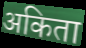
अकिता